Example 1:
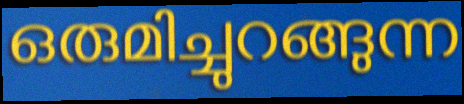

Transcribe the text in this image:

ഒരുമിച്ചുറങ്ങുന്ന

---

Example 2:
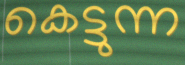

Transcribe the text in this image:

കെട്ടുന്ന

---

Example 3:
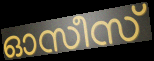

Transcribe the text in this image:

ഓസീസ്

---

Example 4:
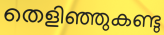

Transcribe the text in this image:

തെളിഞ്ഞുകണ്ടു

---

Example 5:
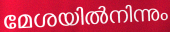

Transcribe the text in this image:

മേശയിൽനിന്നും